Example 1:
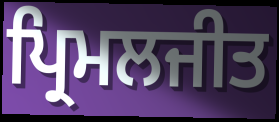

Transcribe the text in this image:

ਪ੍ਰਿਮਲਜੀਤ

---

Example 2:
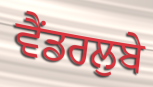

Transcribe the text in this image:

ਵੈਂਡਰਲੁਬੇ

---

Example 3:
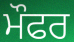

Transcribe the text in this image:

ਮੌਫਰ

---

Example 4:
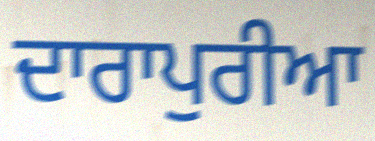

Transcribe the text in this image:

ਦਾਰਾਪੁਰੀਆ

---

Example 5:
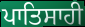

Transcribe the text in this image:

ਪਾਤਿਸਾਹੀ